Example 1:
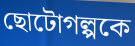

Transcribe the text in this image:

ছোটোগল্পকে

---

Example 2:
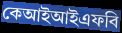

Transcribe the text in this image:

কেআইআইএফবি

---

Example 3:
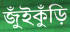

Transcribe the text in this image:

জুঁইকুঁড়ি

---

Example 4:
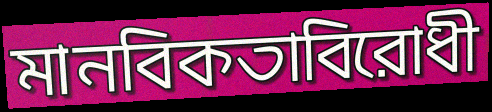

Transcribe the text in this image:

মানবিকতাবিরোধী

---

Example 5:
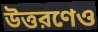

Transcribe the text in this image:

উত্তরণেও